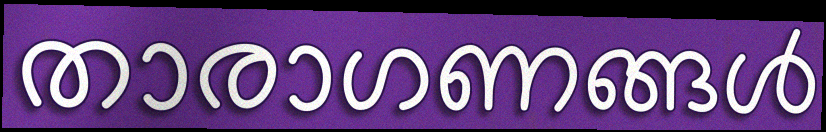
താരാഗണങ്ങൾ